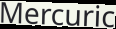
Mercuric